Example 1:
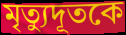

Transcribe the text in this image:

মৃত্যুদূতকে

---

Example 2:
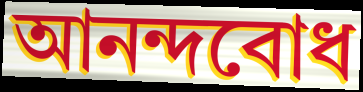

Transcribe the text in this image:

আনন্দবোধ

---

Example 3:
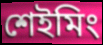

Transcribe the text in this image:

শেইমিং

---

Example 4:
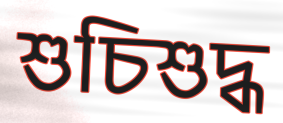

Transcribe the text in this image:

শুচিশুদ্ধ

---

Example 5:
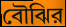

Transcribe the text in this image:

বৌঝির